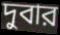
দুবার